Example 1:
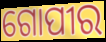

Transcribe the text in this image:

ଗୋପୀର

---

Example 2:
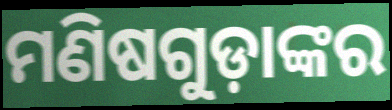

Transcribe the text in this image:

ମଣିଷଗୁଡ଼ାଙ୍କର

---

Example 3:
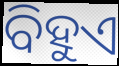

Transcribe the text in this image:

ବିହୁଏ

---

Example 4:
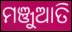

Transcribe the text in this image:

ମଞ୍ଜୁଆତି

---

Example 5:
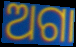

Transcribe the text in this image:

ଅଗା